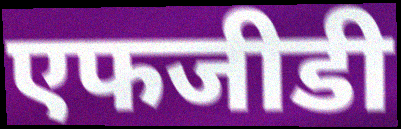
एफजीडी